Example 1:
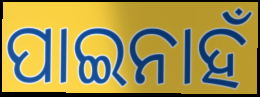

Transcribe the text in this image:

ପାଇନାହଁ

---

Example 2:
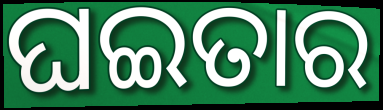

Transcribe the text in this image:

ଘଇତାର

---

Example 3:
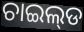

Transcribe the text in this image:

ଚାଇଲ୍‌ଡ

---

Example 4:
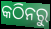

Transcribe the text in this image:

କଠିନରୁ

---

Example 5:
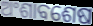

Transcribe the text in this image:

ଅଂଶାବଶେଷ